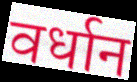
वर्धान